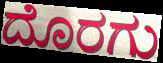
ದೊರಗು